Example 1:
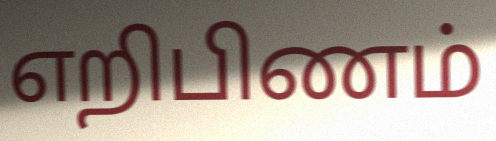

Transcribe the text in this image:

எறிபிணம்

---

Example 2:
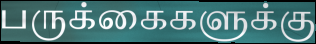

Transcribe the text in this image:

பருக்கைகளுக்கு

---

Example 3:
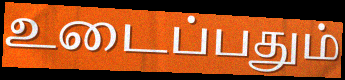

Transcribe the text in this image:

உடைப்பதும்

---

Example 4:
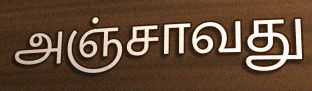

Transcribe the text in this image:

அஞ்சாவது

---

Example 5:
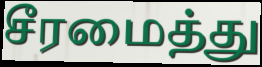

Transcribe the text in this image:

சீரமைத்து